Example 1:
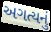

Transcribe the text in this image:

અગત્યનું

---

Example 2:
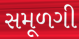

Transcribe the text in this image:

સમૂળગી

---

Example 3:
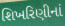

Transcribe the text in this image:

શિખરિણીનાં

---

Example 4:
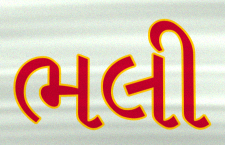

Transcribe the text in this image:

ભલી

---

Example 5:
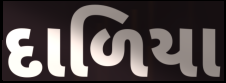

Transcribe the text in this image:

દાળિયા